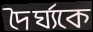
দৈর্ঘ্যকে